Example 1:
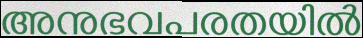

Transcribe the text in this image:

അനുഭവപരതയിൽ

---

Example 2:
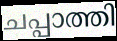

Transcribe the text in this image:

ചപ്പാത്തി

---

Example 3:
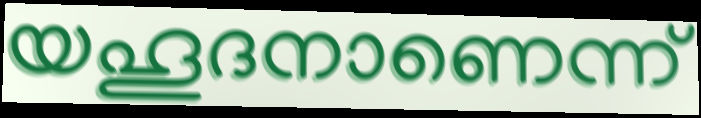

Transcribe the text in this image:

യഹൂദനാണെന്ന്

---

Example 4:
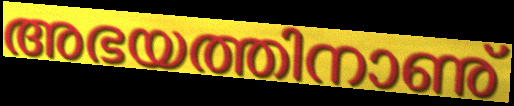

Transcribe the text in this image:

അഭയത്തിനാണു്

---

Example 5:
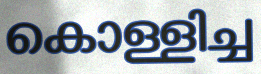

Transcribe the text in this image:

കൊള്ളിച്ച